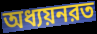
অধ্যয়নরত